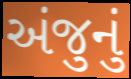
અંજુનું